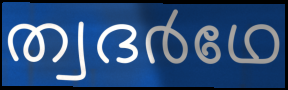
ത്വദർഥേ